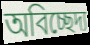
অবিচ্ছেদ্য